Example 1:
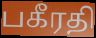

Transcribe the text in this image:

பகீரதி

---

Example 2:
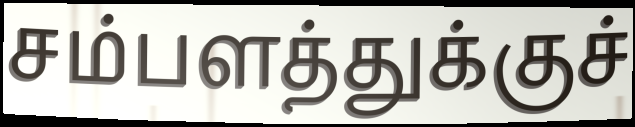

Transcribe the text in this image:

சம்பளத்துக்குச்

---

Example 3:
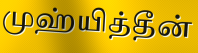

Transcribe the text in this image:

முஹ்யித்தீன்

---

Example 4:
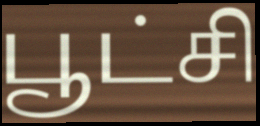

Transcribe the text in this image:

பூட்சி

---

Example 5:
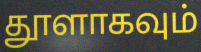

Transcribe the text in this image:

தூளாகவும்